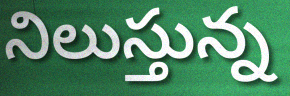
నిలుస్తున్న